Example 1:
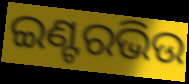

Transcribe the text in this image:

ଇଣ୍ଟରଭିଉ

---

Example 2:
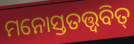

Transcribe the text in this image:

ମନୋସ୍ତତତ୍ତ୍ୱବିତ୍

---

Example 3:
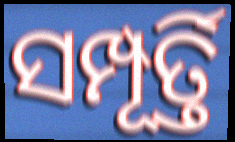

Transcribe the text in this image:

ସମ୍ପୂର୍ତ୍ତି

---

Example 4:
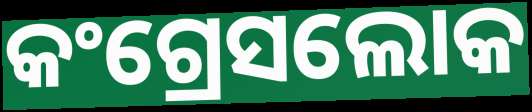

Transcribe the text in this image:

କଂଗ୍ରେସଲୋକ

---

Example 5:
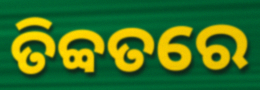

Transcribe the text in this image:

ତିବ୍ବତରେ